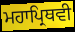
ਮਹਾਪ੍ਰਿਥਵੀ